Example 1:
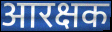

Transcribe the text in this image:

आरक्षक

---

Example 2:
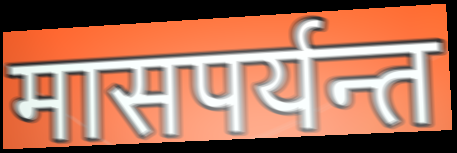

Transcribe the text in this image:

मासपर्यन्त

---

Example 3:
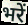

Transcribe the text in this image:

भरें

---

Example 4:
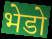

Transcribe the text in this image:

भेडो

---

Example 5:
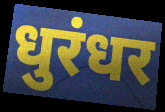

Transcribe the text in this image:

धुरंधर